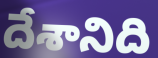
దేశానిది